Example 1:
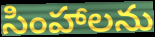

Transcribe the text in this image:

సింహాలను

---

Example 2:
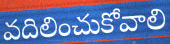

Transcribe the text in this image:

వదిలించుకోవాలి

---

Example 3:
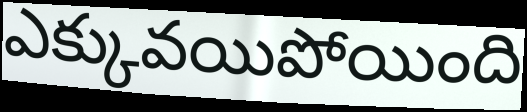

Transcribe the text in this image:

ఎక్కువయిపోయింది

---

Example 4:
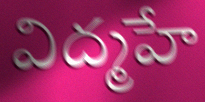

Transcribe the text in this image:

విద్మహే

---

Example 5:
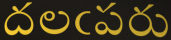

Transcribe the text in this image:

దలఁపరు